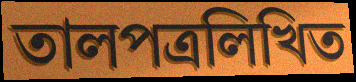
তালপত্রলিখিত